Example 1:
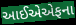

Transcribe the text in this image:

આઈએએફના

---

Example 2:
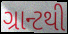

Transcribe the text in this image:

ગ્રાન્ટથી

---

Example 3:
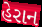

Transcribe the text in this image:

હેરાન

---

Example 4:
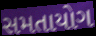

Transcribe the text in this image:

સમતાયોગ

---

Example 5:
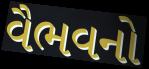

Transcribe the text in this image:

વૈભવનો